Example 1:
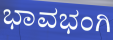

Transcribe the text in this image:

ಭಾವಭಂಗಿ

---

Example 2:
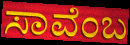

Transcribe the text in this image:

ಸಾವೆಂಬ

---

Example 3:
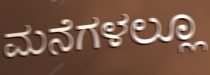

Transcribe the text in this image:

ಮನೆಗಳಲ್ಲೂ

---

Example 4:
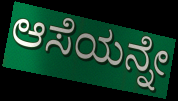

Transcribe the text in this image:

ಆಸೆಯನ್ನೇ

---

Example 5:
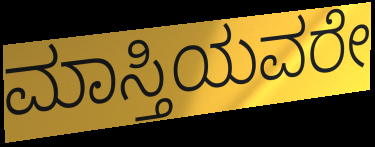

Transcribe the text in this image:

ಮಾಸ್ತಿಯವರೇ